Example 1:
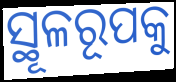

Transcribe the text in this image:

ସ୍ଥୂଳରୂପକୁ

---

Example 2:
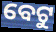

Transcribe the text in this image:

ବେଟୁ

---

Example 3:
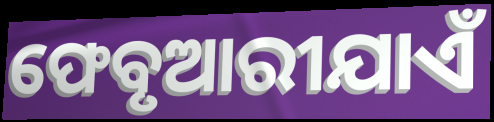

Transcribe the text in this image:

ଫେବୃଆରୀଯାଏଁ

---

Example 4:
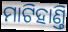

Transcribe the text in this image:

ମାଟିହାଣ୍ତି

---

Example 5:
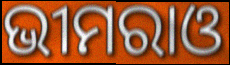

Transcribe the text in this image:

ଭୀମରାଓ